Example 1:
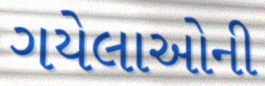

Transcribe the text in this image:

ગયેલાઓની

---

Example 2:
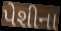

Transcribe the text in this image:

પેશીના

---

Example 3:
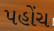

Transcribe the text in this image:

પહોંચ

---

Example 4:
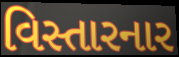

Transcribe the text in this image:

વિસ્તારનાર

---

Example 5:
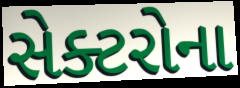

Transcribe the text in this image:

સેક્ટરોના